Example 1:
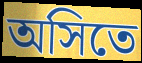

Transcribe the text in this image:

অসিতে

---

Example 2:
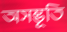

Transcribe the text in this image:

অসম্ভূতি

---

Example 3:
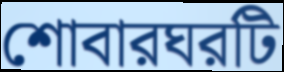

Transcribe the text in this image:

শোবারঘরটি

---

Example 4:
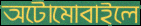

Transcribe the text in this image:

অটোমোবাইলে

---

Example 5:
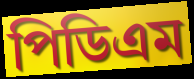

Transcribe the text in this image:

পিডিএম